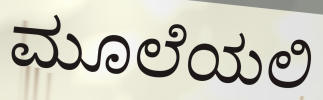
ಮೂಲೆಯಲಿ